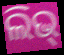
ଲିଭ୍